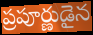
ప్రపూర్ణుడైన